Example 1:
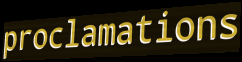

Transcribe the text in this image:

proclamations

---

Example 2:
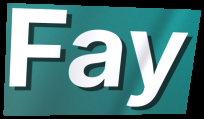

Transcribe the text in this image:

Fay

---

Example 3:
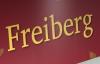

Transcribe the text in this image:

Freiberg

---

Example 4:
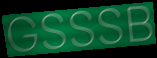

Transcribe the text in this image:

GSSSB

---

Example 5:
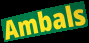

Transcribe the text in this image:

Ambals